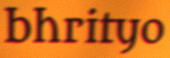
bhrityo